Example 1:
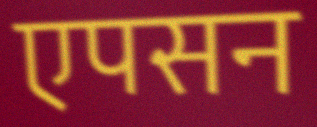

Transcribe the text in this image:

एपसन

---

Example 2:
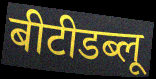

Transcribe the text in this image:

बीटीडब्लू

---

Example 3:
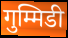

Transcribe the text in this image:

गुम्मिडी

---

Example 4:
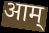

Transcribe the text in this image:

आम्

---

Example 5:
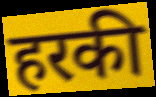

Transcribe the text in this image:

हरकी